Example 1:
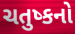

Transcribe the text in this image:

ચતુષ્કનો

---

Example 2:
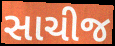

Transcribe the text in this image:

સાચીજ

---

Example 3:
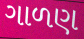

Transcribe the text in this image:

ગાળણ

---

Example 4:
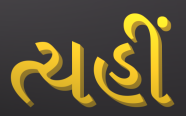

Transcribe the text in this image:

ત્યહીં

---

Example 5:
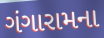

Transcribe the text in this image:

ગંગારામના